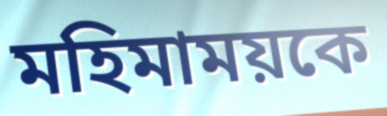
মহিমাময়কে